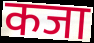
कजा